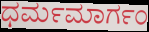
ಧರ್ಮಮಾರ್ಗಂ